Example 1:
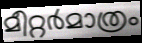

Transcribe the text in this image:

മീറ്റർമാത്രം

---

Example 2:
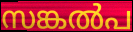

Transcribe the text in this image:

സങ്കൽപ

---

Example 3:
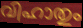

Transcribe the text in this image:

വിഹാതും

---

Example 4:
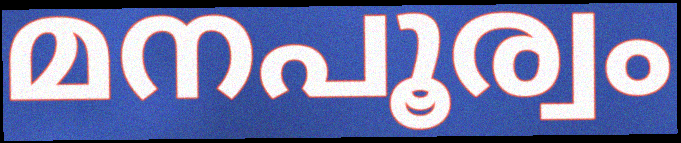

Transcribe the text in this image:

മനപൂര്വം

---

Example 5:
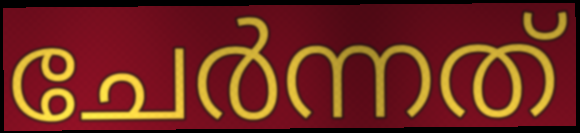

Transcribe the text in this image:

ചേർന്നത്